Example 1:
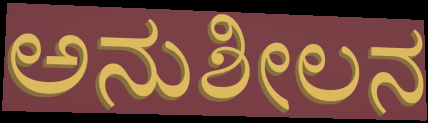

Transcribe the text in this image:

ಅನುಶೀಲನ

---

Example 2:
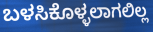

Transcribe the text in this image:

ಬಳಸಿಕೊಳ್ಳಲಾಗಲಿಲ್ಲ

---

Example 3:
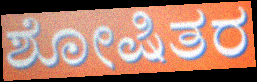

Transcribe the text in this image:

ಶೋಷಿತರ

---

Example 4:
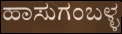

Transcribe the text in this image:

ಹಾಸುಗಂಬಳ್ಳ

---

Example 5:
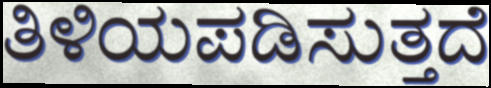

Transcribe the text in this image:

ತಿಳಿಯಪಡಿಸುತ್ತದೆ